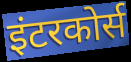
इंटरकोर्स